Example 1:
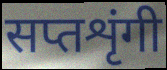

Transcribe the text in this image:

सप्तशृंगी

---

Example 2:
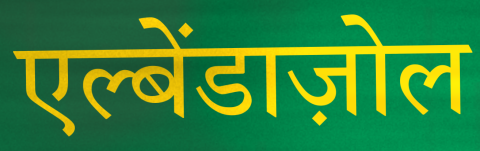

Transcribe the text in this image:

एल्बेंडाज़ोल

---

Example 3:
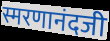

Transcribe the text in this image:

स्मरणानंदजी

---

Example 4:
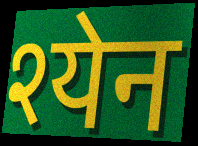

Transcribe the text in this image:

श्येन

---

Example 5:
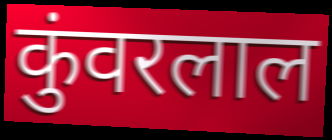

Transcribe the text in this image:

कुंवरलाल